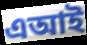
এআই